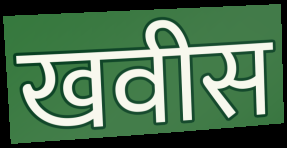
खवीस